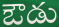
ఔడు